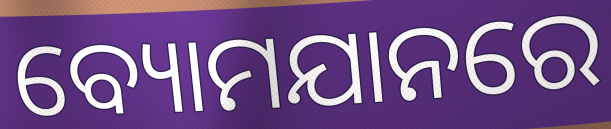
ବ୍ୟୋମଯାନରେ